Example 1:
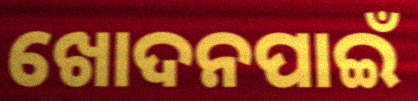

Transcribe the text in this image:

ଖୋଦନପାଇଁ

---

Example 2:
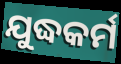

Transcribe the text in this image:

ଯୁଦ୍ଧକର୍ମ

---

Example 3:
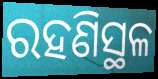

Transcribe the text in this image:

ରହଣିସ୍ଥଳ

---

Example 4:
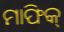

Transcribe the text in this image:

ମାଫିକ୍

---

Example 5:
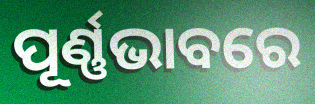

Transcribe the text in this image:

ପୂର୍ଣ୍ଣଭାବରେ